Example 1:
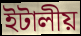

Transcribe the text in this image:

ইটালীয়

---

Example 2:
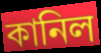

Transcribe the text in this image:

কানিল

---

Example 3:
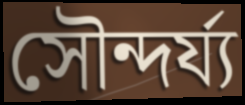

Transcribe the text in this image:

সৌন্দৰ্য্য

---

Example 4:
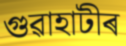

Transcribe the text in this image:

গুৱাহাটীৰ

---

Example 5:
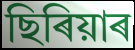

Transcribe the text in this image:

ছিৰিয়াৰ